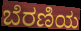
ಬೆರಣಿಯ